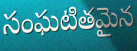
సంఘటితమైన